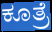
ಕೂತ್ರೆ